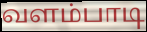
வளம்பாடி